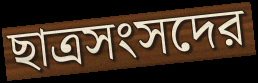
ছাত্রসংসদের